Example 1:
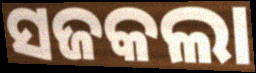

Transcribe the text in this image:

ସଜକଲା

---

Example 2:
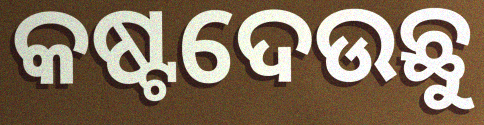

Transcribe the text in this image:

କଷ୍ଟଦେଉଛୁ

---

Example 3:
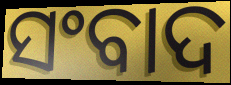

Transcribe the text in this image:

ସଂବାଦ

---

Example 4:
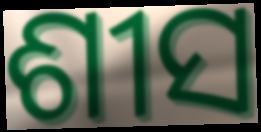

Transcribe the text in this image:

ଶୀସ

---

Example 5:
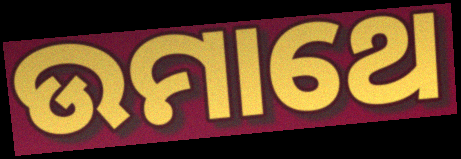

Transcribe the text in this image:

ଉମାଥେ